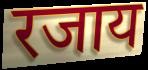
रजाय